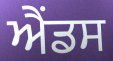
ਐਂਡਸ